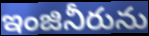
ఇంజినీరును